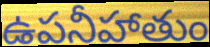
ఉపనీహాతుం